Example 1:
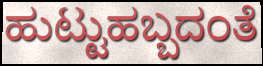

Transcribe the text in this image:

ಹುಟ್ಟುಹಬ್ಬದಂತೆ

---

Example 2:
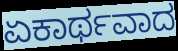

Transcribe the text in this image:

ಏಕಾರ್ಥವಾದ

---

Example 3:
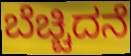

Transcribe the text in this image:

ಬೆಚ್ಚಿದನೆ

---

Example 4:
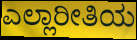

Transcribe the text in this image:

ಎಲ್ಲಾರೀತಿಯ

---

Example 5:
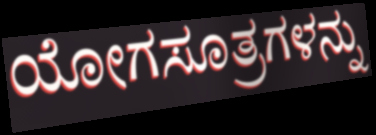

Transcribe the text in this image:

ಯೋಗಸೂತ್ರಗಳನ್ನು